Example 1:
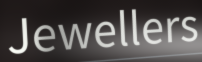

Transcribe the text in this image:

Jewellers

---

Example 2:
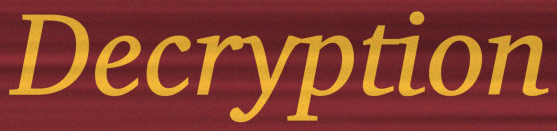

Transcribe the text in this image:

Decryption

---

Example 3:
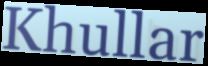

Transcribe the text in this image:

Khullar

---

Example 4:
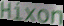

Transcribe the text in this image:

Hixon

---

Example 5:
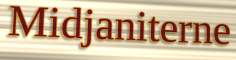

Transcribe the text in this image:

Midjaniterne